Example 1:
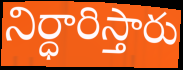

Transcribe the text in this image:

నిర్ధారిస్తారు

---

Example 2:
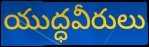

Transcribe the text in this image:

యుద్ధవీరులు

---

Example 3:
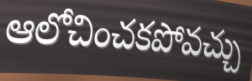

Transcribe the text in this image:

ఆలోచించకపోవచ్చు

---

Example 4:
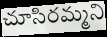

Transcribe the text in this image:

చూసిరమ్మని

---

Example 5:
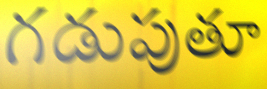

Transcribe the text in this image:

గడుపుతూ